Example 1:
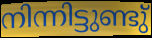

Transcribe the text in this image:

നിന്നിട്ടുണ്ടു്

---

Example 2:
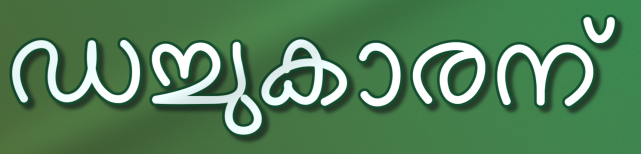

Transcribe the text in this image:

ഡച്ചുകാരന്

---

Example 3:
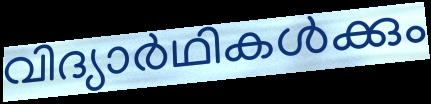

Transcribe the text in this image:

വിദ്യാർഥികൾക്കും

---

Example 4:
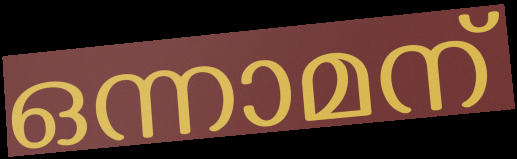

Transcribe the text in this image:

ഒന്നാമന്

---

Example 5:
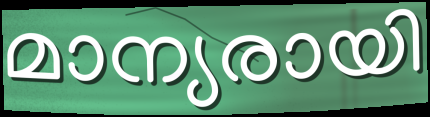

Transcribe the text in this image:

മാന്യരായി